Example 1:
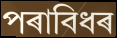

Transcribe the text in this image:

পৰাবিধৰ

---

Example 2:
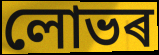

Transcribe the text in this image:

লোভৰ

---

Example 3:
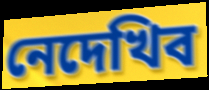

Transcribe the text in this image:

নেদেখিব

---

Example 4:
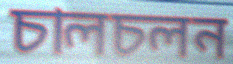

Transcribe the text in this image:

চালচলন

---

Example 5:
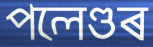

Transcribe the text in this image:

পলেণ্ডৰ